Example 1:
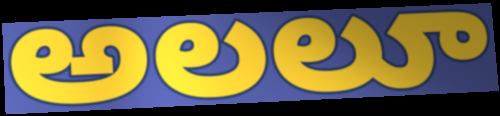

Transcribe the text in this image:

అలలూ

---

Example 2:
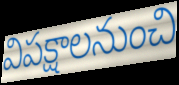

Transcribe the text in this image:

విపక్షాలనుంచి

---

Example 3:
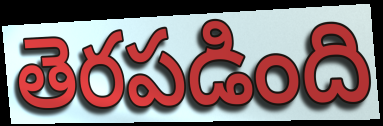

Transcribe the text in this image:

తెరపడింది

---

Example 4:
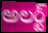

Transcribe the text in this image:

అలర్ట్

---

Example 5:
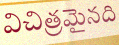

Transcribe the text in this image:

విచిత్రమైనది